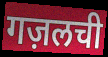
गज़लची